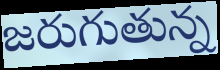
జరుగుతున్న